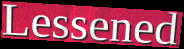
Lessened